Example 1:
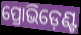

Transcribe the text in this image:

ପ୍ରୋଭିଡ଼େଣ୍ଟ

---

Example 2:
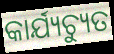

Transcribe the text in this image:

କାର୍ଯ୍ୟଚ୍ୟୁତ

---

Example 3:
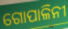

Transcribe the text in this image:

ଗୋପାଳିନୀ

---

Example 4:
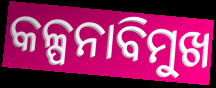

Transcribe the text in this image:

କଳ୍ପନାବିମୁଖ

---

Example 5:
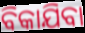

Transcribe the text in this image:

ବିକାଯିବା